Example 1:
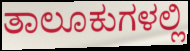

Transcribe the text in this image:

ತಾಲೂಕುಗಳಲ್ಲಿ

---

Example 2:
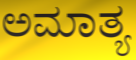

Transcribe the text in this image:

ಅಮಾತ್ಯ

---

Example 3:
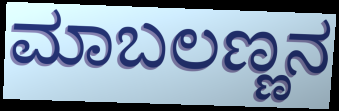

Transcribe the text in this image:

ಮಾಬಲಣ್ಣನ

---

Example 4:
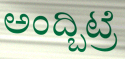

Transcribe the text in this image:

ಅಂದ್ಬಿಟ್ರೆ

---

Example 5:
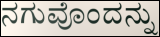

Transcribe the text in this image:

ನಗುವೊಂದನ್ನು